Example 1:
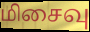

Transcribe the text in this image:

மிசைவு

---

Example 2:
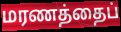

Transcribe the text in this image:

மரணத்தைப்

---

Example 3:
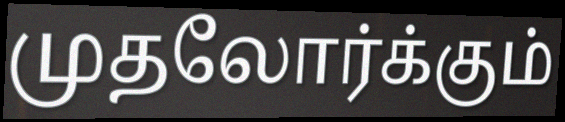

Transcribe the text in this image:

முதலோர்க்கும்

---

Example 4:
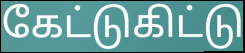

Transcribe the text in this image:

கேட்டுகிட்டு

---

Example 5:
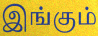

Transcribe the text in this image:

இங்கும்